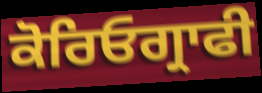
ਕੋਰਿਓਗ੍ਰਾਫੀ